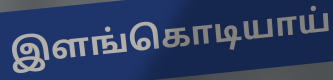
இளங்கொடியாய்